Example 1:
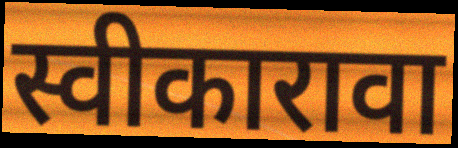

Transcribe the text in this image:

स्वीकारावा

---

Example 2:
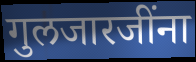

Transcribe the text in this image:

गुलजारजींना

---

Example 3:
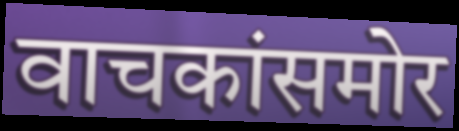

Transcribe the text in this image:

वाचकांसमोर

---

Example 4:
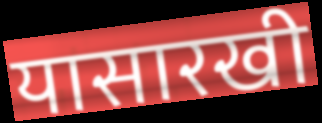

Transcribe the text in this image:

यासारखी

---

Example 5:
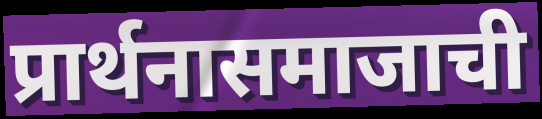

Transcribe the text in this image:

प्रार्थनासमाजाची